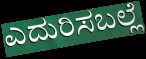
ಎದುರಿಸಬಲ್ಲೆ